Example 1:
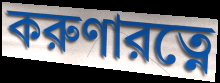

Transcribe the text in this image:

করুণারত্নে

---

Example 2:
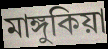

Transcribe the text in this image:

মাঙ্গুকিয়া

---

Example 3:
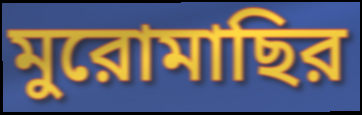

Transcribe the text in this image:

মুরোমাছির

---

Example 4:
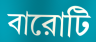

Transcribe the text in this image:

বারোটি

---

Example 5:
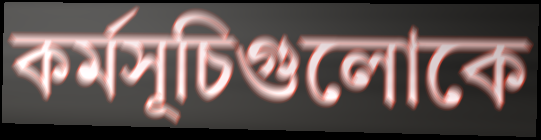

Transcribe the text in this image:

কর্মসূচিগুলোকে